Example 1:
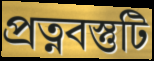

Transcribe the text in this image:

প্রত্নবস্তুটি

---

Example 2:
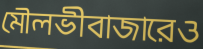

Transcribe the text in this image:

মৌলভীবাজারেও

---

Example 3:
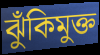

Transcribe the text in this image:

ঝুঁকিমুক্ত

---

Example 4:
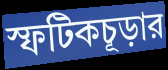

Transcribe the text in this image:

স্ফটিকচূড়ার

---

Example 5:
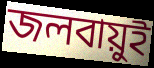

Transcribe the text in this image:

জলবায়ুই